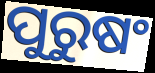
ପୁରୁଷଂ